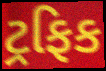
ટ્રફિક